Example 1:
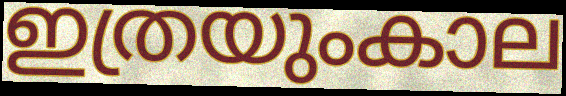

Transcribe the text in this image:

ഇത്രയുംകാല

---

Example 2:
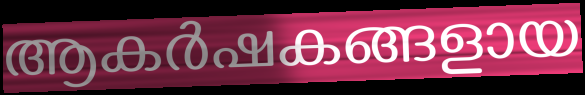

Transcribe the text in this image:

ആകർഷകങ്ങളായ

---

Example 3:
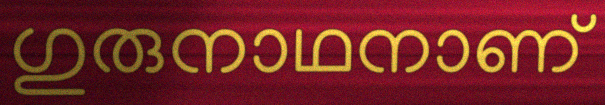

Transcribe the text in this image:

ഗുരുനാഥനാണ്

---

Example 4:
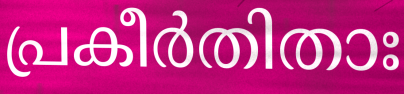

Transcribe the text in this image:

പ്രകീർതിതാഃ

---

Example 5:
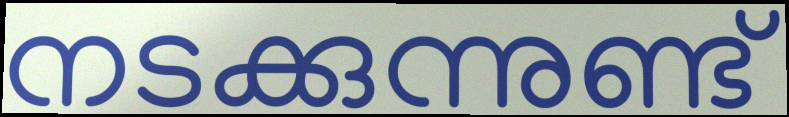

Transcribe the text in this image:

നടക്കുന്നുണ്ട്